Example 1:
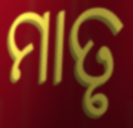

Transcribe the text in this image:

ମାତୃ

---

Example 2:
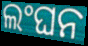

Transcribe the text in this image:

ଲଂଘନ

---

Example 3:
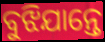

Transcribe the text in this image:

ବୁଝିଯାନ୍ତେ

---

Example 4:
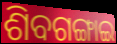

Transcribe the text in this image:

ଶିବଗଙ୍ଗାଇ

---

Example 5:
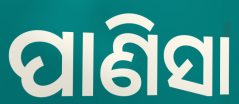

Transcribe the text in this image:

ପାଣିସା